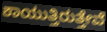
ಕಾಯುತ್ತಿರುತ್ತೇವೆ